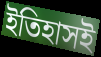
ইতিহাসই